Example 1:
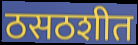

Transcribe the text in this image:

ठसठशीत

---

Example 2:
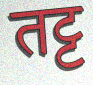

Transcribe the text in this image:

तट्ट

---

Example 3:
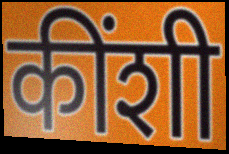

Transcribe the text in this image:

कींशी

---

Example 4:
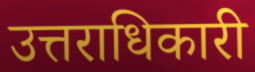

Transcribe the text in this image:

उत्तराधिकारी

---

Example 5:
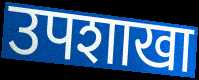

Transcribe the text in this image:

उपशाखा